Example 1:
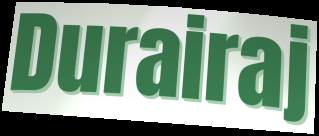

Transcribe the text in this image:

Durairaj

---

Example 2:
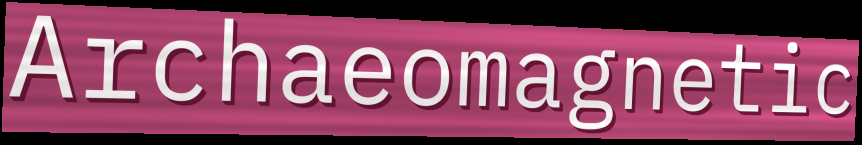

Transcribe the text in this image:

Archaeomagnetic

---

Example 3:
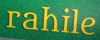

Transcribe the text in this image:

rahile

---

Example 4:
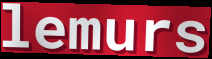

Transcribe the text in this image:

lemurs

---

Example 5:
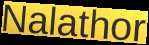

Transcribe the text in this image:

Nalathor